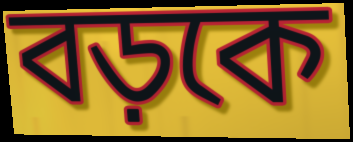
বড়কে